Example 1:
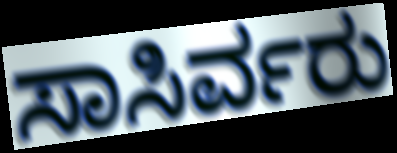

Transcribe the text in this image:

ಸಾಸಿರ್ವರು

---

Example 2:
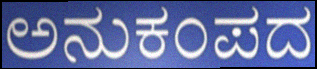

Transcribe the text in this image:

ಅನುಕಂಪದ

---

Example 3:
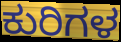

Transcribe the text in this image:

ಕುರಿಗಳ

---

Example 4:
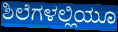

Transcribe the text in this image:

ಶಿಲೆಗಳಲ್ಲಿಯೂ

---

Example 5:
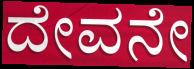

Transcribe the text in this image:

ದೇವನೇ